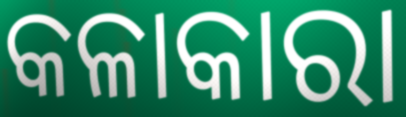
କଳାକାରା